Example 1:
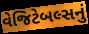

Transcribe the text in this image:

વેજિટેબલ્સનું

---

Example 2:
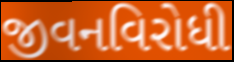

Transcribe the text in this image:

જીવનવિરોધી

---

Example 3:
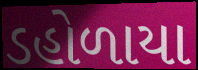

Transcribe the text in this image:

ડહોળાયા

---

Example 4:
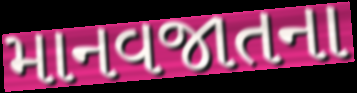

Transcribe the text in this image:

માનવજાતના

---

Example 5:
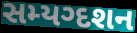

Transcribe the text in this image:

સમ્યગ્દશન